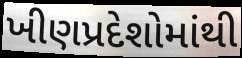
ખીણપ્રદેશોમાંથી